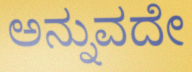
ಅನ್ನುವದೇ